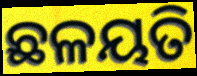
ଛଳୟତି